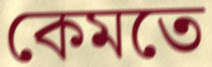
কেমতে